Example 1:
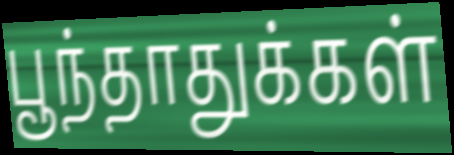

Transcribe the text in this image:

பூந்தாதுக்கள்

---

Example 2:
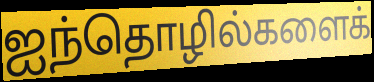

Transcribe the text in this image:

ஐந்தொழில்களைக்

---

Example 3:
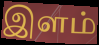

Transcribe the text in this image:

இளம்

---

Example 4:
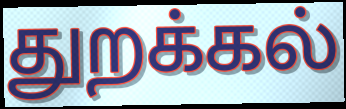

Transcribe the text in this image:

துறக்கல்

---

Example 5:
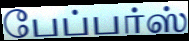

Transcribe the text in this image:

பேப்பர்ஸ்